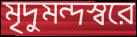
মৃদুমন্দস্বরে